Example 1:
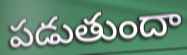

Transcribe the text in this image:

పడుతుందా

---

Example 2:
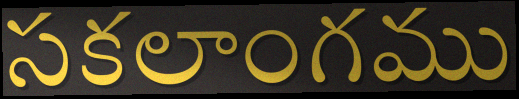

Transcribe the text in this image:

సకలాంగము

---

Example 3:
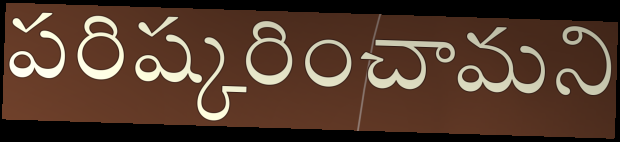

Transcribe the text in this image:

పరిష్కరించామని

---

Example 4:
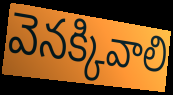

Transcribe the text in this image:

వెనక్కివాలి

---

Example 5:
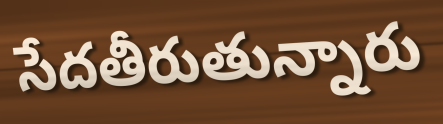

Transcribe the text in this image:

సేదతీరుతున్నారు